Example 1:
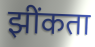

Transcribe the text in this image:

झींकता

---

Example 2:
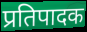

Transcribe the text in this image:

प्रतिपादक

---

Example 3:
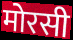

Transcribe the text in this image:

मोरसी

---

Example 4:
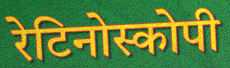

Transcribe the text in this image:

रेटिनोस्कोपी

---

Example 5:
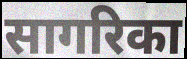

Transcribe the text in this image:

सागरिका